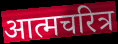
आत्मचरित्र